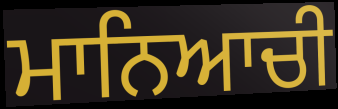
ਮਾਨਿਆਚੀ